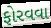
ફોરવવા